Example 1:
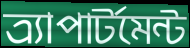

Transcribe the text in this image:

ত্র্যাপার্টমেন্ট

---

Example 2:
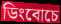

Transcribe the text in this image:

ডিংবোচে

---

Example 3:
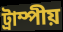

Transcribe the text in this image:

ট্রাম্পীয়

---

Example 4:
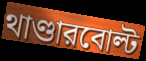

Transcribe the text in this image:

থাণ্ডারবোল্ট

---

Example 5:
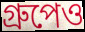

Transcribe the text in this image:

গ্রুপেও